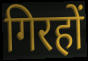
गिरहों